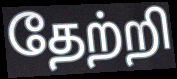
தேற்றி